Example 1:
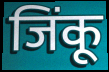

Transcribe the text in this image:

जिंकू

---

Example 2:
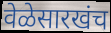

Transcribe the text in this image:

वेळेसारखंच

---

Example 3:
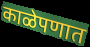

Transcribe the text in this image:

काळेपणात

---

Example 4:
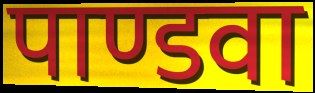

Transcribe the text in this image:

पाण्डवा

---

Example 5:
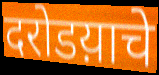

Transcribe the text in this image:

दरोडय़ाचे